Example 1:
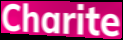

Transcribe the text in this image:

Charite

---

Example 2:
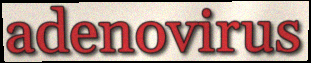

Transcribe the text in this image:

adenovirus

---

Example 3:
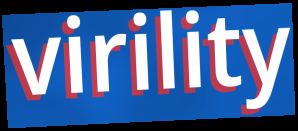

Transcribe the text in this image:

virility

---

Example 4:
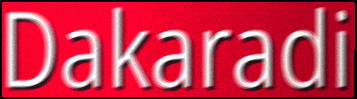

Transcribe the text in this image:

Dakaradi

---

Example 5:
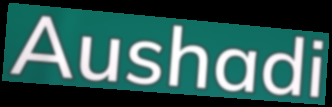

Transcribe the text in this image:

Aushadi